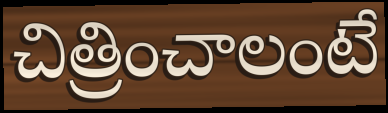
చిత్రించాలంటే